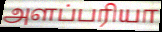
அளப்பரியா